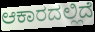
ಆಕಾರದಲ್ಲಿದೆ